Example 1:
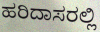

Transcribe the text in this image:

ಹರಿದಾಸರಲ್ಲಿ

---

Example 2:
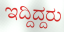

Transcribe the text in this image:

ಇದ್ದಿದ್ದರು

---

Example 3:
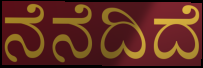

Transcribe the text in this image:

ನೆನೆದಿದೆ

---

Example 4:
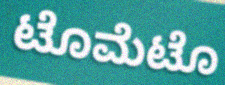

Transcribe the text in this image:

ಟೊಮೆಟೊ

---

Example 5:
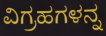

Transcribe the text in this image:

ವಿಗ್ರಹಗಳನ್ನ